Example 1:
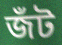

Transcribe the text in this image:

জঁট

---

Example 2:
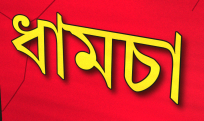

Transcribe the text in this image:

ধামচা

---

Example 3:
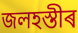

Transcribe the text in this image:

জলহস্তীৰ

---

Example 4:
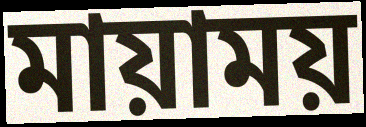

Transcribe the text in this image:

মায়াময়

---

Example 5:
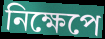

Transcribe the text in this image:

নিক্ষেপে